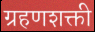
ग्रहणशक्ती